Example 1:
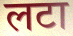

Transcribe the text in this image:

लटा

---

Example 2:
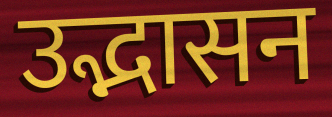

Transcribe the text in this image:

उद्भासन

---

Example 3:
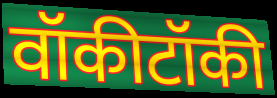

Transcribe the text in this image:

वॉकीटॉकी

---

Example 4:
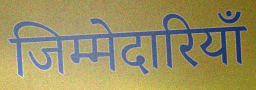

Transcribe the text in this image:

जिम्मेदारियाँ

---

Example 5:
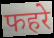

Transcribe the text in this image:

फहरे